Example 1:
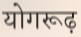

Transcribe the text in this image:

योगरूढ़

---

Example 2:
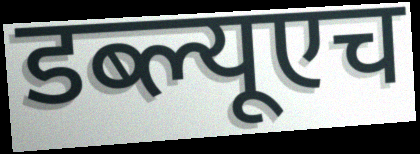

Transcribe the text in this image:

डब्ल्यूएच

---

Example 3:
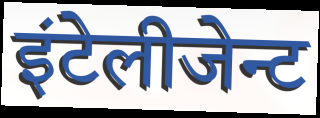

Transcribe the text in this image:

इंटेलीजेन्ट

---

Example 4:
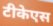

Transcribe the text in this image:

टीकेएस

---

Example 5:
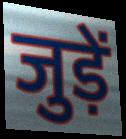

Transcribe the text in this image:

जुड़ें